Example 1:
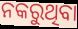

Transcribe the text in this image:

ନକରୁଥିବା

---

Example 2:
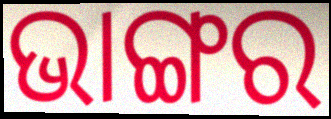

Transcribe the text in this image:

ଭାଙ୍ଗର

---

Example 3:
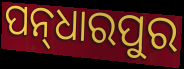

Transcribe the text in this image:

ପନ୍‌ଧାରପୁର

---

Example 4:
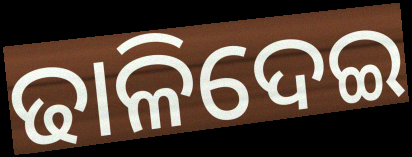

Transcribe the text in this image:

ଢାଳିଦେଇ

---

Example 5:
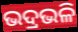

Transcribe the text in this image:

ଭଦ୍ରଭଳି